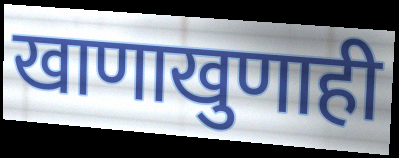
खाणाखुणाही